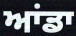
ਆਂਡਾ